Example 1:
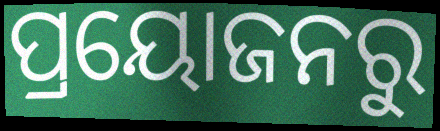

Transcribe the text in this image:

ପ୍ରୟୋଜନରୁ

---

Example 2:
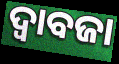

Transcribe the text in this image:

ଦ୍ୱାବଜା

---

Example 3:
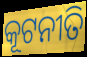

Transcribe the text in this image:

କୂଟନୀତି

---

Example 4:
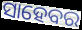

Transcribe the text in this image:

ସାହେବର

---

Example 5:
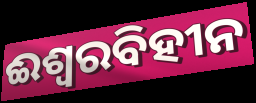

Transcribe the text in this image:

ଈଶ୍ୱରବିହୀନ